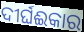
ଦୀର୍ଘଈକାର